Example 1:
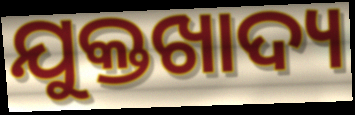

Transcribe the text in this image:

ଯୁକ୍ତଖାଦ୍ୟ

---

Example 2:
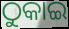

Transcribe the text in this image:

ଠୁକାଇ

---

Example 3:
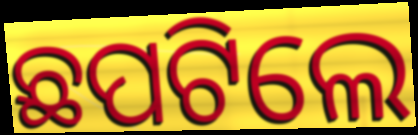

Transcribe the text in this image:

ଛପଟିଲେ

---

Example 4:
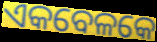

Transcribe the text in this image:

ଏକବେଳକେ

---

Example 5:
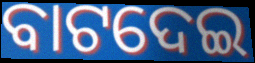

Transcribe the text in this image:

ବାଟଦେଇ